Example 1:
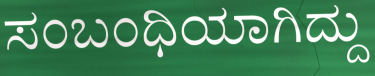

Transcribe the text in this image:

ಸಂಬಂಧಿಯಾಗಿದ್ದು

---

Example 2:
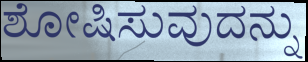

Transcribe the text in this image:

ಶೋಷಿಸುವುದನ್ನು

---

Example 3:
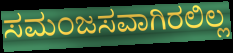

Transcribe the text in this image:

ಸಮಂಜಸವಾಗಿರಲಿಲ್ಲ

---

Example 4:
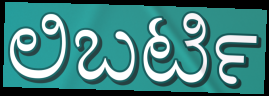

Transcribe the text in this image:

ಲಿಬರ್ಟಿ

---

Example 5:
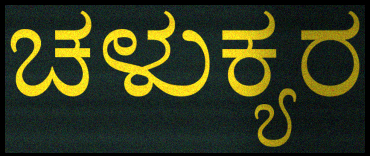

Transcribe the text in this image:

ಚಳುಕ್ಯರ